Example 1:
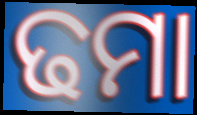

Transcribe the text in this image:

ଢମା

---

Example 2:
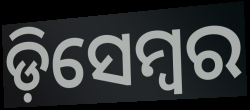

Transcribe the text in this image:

ଡ଼ିସେମ୍ୱର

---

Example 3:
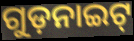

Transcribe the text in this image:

ଗୁଡ଼ନାଇଟ୍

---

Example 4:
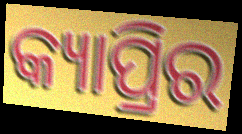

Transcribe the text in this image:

କ୍ୟାପ୍ରିର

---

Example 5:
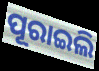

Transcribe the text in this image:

ପୂରାଇଲି